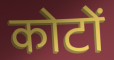
कोटों